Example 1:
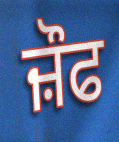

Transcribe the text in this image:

ਜ਼ੌਫ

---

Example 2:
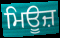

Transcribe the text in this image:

ਮਿਊਜ਼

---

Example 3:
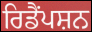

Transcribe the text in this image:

ਰਿਡੈਂਪਸ਼ਨ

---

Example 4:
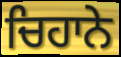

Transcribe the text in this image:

ਚਿਹਾਨੇ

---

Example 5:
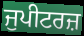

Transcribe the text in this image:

ਜੁਪੀਟਰਜ਼